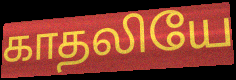
காதலியே